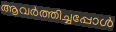
ആവർത്തിച്ചപ്പോൾ